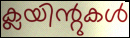
ക്ലയിന്റുകൾ